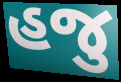
હજુ